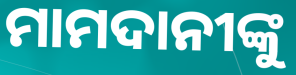
ମାମଦାନୀଙ୍କୁ